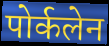
पोर्कलेन